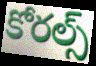
కోరల్స్